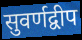
सुवर्णद्वीप